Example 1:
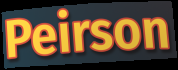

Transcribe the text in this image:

Peirson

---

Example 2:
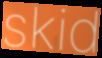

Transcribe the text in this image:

skid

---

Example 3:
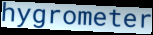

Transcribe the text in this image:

hygrometer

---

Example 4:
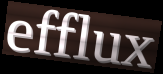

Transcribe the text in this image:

efflux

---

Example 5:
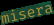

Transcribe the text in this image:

misera